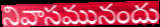
నివాసమునందు